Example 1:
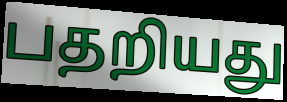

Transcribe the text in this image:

பதறியது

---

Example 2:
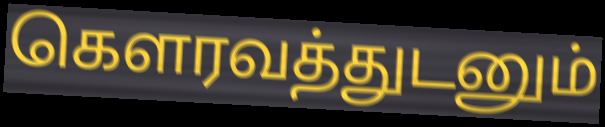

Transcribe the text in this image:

கௌரவத்துடனும்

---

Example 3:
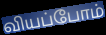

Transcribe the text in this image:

வியப்போம்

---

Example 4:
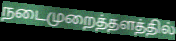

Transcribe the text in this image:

நடைமுறைத்தளத்தில்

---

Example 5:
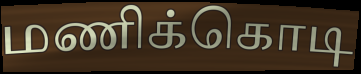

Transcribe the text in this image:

மணிக்கொடி